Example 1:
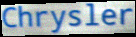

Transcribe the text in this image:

Chrysler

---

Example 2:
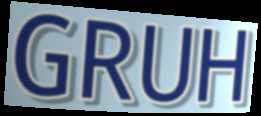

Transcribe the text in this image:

GRUH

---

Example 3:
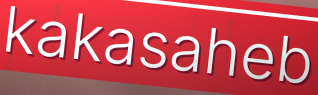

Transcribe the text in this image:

kakasaheb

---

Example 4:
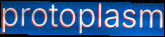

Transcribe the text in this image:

protoplasm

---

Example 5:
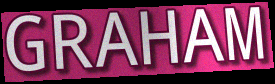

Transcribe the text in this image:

GRAHAM